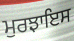
ਮੁਰਝਾਇਸ